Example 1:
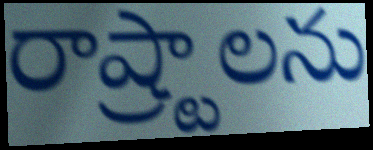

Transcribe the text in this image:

రాష్ర్టాలను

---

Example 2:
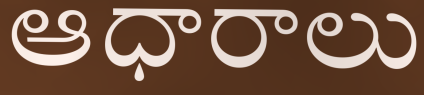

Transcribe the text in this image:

ఆధారాలు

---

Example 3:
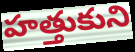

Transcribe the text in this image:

హత్తుకుని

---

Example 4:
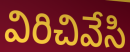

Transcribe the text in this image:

విరిచివేసి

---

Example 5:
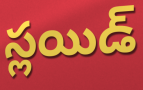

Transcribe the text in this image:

స్లయిడ్